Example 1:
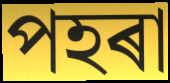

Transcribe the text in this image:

পহৰা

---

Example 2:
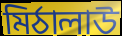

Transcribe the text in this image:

মিঠালাউ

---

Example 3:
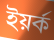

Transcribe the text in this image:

ইয়ৰ্ক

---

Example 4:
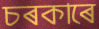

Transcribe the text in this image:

চৰকাৰে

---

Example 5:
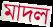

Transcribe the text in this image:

মাদল